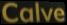
Calve